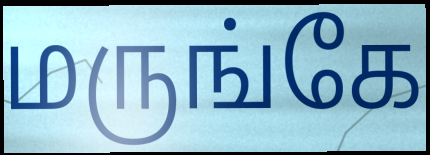
மருங்கே